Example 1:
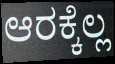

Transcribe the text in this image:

ಆರಕ್ಕೆಲ್ಲ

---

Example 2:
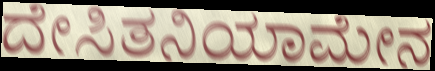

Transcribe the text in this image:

ದೇಸಿತನಿಯಾಮೇನ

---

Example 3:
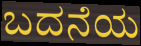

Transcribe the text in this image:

ಬದನೆಯ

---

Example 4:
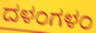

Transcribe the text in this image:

ದಳಂಗಳಂ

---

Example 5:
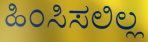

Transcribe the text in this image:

ಹಿಂಸಿಸಲಿಲ್ಲ